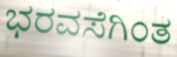
ಭರವಸೆಗಿಂತ